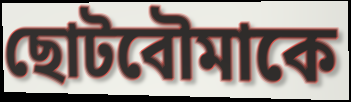
ছোটবৌমাকে